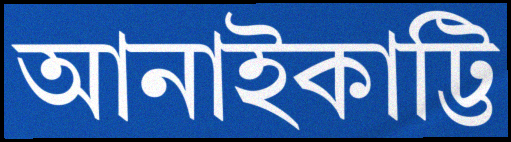
আনাইকাট্টি